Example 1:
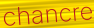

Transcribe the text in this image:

chancre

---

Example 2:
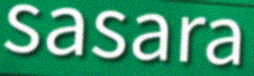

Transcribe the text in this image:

sasara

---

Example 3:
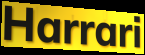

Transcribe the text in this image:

Harrari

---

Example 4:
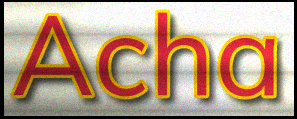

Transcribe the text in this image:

Acha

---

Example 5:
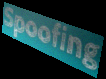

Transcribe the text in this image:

Spoofing